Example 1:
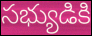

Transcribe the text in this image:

సభ్యుడికి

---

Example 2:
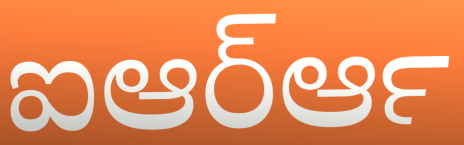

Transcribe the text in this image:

ఐఆర్ఆర్‍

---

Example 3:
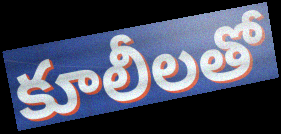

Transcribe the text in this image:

కూలీలతో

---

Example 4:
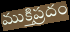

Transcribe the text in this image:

ముక్తిప్రదం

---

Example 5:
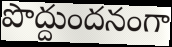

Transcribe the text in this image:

పొద్దుందనంగా